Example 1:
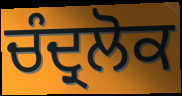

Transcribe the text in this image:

ਚੰਦ੍ਰਲੋਕ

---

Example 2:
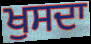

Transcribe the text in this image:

ਖੁਸਦਾ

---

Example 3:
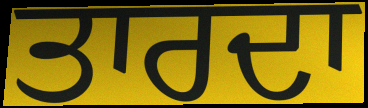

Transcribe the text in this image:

ਤਾਰਦਾ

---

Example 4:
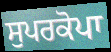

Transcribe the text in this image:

ਸੁਪਰਕੋਪਾ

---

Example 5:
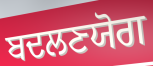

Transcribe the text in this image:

ਬਦਲਣਯੋਗ